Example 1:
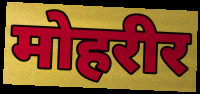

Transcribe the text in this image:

मोहरीर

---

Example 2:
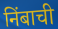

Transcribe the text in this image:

निंबाची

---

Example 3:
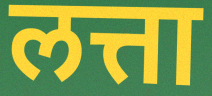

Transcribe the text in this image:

लत्ता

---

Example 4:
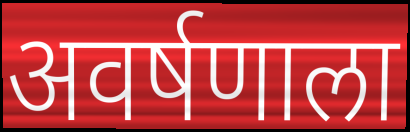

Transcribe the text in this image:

अवर्षणाला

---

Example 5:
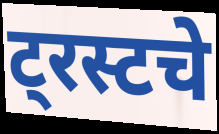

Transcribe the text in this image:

ट्रस्टचे